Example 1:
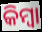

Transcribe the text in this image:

କିମ୍ବା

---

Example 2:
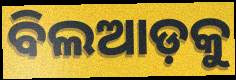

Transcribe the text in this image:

ବିଲଆଡ଼କୁ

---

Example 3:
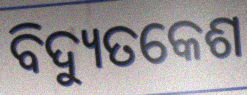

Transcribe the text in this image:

ବିଦ୍ୟୁତକେଶ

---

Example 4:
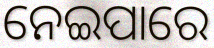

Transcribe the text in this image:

ନେଇପାରେ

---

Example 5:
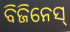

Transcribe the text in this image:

ବିଜିନେସ୍